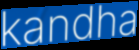
kandha